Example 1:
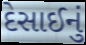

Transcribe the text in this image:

દેસાઈનું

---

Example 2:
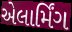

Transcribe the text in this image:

એલાર્મિંગ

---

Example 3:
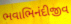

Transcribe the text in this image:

ભવાભિનંદીજીવ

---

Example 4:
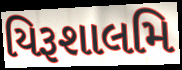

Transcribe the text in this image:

યિરૂશાલમિ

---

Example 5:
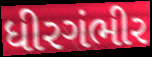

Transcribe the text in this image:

ધીરગંભીર